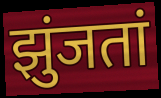
झुंजतां